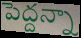
పెద్దన్నా